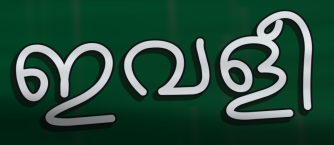
ഇവളീ